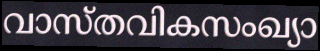
വാസ്തവികസംഖ്യാ